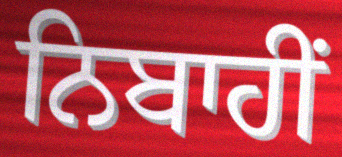
ਨਿਬਾਹੀਂ